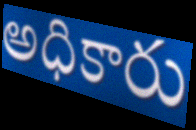
అధికారు